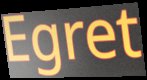
Egret